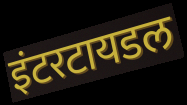
इंटरटायडल